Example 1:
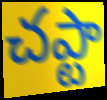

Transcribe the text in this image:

చఎ్టా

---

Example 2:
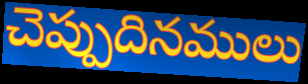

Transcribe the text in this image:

చెప్పుదినములు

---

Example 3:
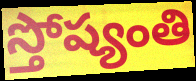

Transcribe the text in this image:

స్తోష్యంతి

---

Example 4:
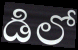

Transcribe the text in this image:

డిలో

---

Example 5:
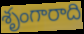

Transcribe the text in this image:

శృంగారాది